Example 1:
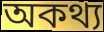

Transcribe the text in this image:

অকথ্য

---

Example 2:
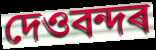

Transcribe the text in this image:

দেওবন্দৰ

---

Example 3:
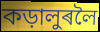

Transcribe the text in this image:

কড়ালুৰলৈ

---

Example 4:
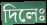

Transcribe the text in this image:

দিলেঃ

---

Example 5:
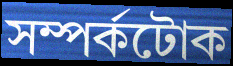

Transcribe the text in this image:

সম্পৰ্কটোক